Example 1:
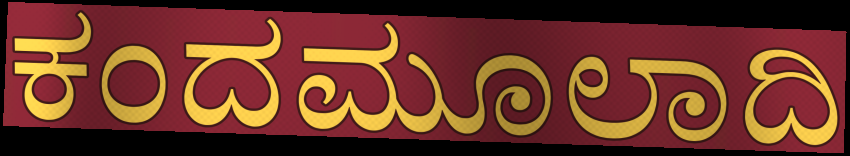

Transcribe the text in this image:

ಕಂದಮೂಲಾದಿ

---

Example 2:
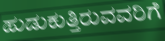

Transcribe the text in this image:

ಹುಡುಕುತ್ತಿರುವವರಿಗೆ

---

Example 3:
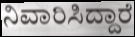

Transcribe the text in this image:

ನಿವಾರಿಸಿದ್ದಾರೆ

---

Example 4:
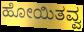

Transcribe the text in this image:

ಹೋಯಿತವ್ವ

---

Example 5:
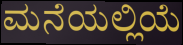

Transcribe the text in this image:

ಮನೆಯಲ್ಲಿಯೆ